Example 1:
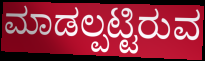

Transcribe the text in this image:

ಮಾಡಲ್ಪಟ್ಟಿರುವ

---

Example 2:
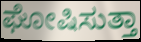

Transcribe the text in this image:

ಘೋಷಿಸುತ್ತಾ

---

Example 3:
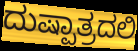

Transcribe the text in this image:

ದುಷ್ಪಾತ್ರದಲಿ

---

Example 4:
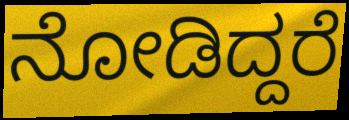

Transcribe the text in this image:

ನೋಡಿದ್ದರೆ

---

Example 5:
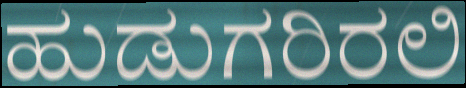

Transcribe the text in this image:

ಹುಡುಗರಿರಲಿ